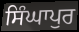
ਸਿੰਘਾਪੁਰ